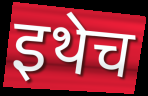
इथेच